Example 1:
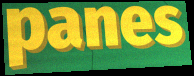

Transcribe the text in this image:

panes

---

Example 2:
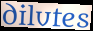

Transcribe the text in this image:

dilutes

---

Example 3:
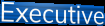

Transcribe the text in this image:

Executive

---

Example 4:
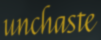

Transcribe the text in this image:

unchaste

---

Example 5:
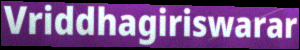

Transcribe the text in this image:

Vriddhagiriswarar